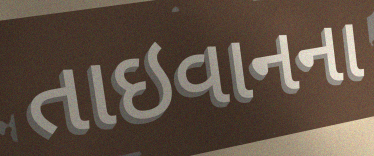
તાઇવાનના